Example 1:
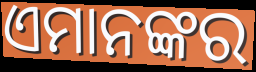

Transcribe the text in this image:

ଏମାନଙ୍କର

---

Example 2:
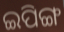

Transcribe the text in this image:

ଇପିଙ୍ଗ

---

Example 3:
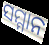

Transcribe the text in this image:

ସମ୍ମାନ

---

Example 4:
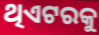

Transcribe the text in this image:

ଥିଏଟରକୁ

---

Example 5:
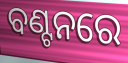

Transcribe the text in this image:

ବଣ୍ଟନରେ